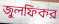
জুলফিকর